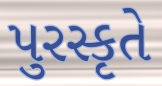
પુરસ્કૃતે